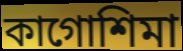
কাগোশিমা